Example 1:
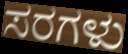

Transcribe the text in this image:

ಸರಗಳು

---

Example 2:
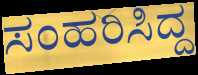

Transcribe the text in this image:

ಸಂಹರಿಸಿದ್ದ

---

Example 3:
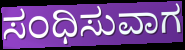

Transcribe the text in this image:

ಸಂಧಿಸುವಾಗ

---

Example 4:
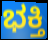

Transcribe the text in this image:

ಭಕ್ತಿ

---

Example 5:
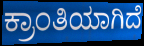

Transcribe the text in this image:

ಕ್ರಾಂತಿಯಾಗಿದೆ